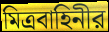
মিত্রবাহিনীর